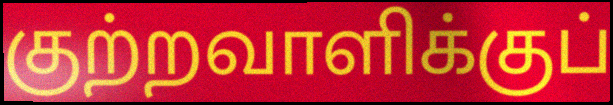
குற்றவாளிக்குப்